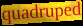
quadruped